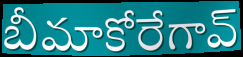
బీమాకోరేగావ్